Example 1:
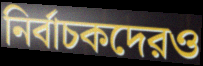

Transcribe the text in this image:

নির্বাচকদেরও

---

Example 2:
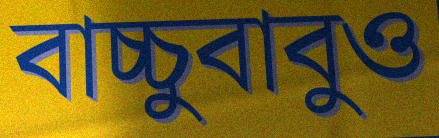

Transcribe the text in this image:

বাচ্চুবাবুও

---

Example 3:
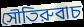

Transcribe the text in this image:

সৌতিরুবাচ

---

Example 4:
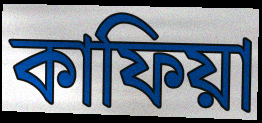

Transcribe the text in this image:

কাফিয়া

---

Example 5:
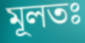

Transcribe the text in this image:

মূলতঃ